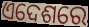
ଏଦେଶରେ